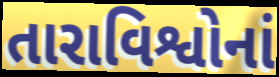
તારાવિશ્વોનાં